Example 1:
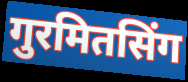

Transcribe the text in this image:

गुरमितसिंग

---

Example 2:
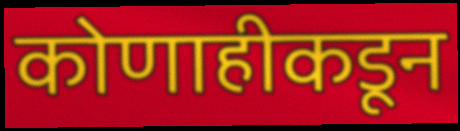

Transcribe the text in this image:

कोणाहीकडून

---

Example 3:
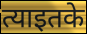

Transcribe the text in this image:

त्याइतके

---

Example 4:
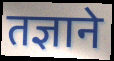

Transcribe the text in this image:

तज्ञाने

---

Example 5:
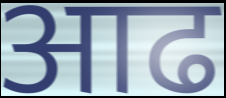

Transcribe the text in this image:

आढ